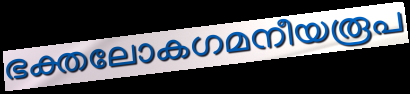
ഭക്തലോകഗമനീയരൂപ